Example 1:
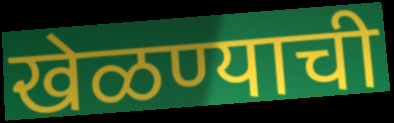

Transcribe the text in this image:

खेळण्याची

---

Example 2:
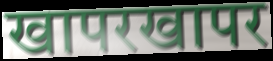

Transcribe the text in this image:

खापरखापर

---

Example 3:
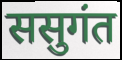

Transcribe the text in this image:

ससुगंत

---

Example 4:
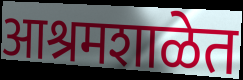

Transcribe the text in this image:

आश्रमशाळेत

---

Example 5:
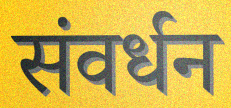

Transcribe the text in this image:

संवर्धन